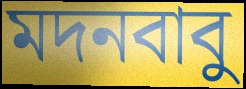
মদনবাবু